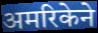
अमरिकेने